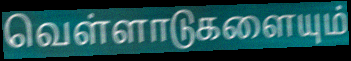
வெள்ளாடுகளையும்